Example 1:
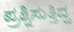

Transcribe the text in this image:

ಪ್ರಶ್ನಿಸುತ್ತಿದ್ದ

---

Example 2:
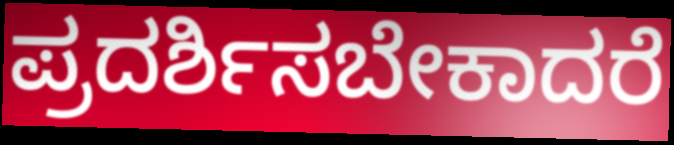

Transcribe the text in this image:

ಪ್ರದರ್ಶಿಸಬೇಕಾದರೆ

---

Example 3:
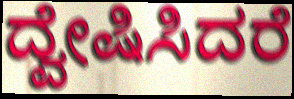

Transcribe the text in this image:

ದ್ವೇಷಿಸಿದರೆ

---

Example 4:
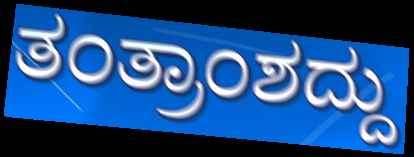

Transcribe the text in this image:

ತಂತ್ರಾಂಶದ್ದು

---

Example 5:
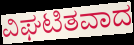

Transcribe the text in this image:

ವಿಘಟಿತವಾದ